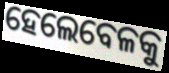
ହେଲେବେଳକୁ